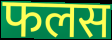
फलस